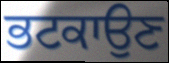
ਭਟਕਾਉਣ